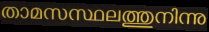
താമസസ്ഥലത്തുനിന്നു